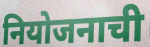
नियोजनाची